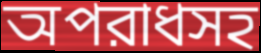
অপরাধসহ